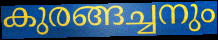
കുരങ്ങച്ചനും